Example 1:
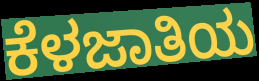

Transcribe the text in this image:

ಕೆಳಜಾತಿಯ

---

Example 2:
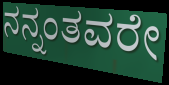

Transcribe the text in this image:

ನನ್ನಂತವರೇ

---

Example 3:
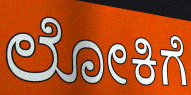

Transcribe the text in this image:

ಲೋಕಿಗೆ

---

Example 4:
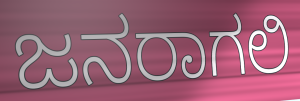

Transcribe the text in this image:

ಜನರಾಗಲಿ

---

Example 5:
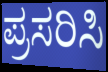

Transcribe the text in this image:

ಪ್ರಸರಿಸಿ